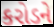
કરોડને